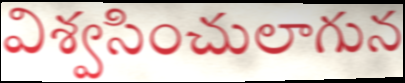
విశ్వసించులాగున